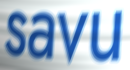
savu